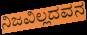
ನಿಜವಿಲ್ಲದವನ